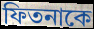
ফিতনাকে